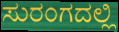
ಸುರಂಗದಲ್ಲಿ